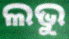
ଲଭୁ